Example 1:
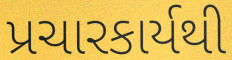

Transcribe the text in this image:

પ્રચારકાર્યથી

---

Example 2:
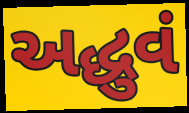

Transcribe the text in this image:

અદ્ધુવં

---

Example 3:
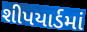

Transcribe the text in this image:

શીપયાર્ડમાં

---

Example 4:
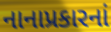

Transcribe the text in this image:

નાનાપ્રકારનાં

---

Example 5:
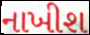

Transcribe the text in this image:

નાખીશ